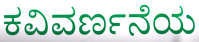
ಕವಿವರ್ಣನೆಯ